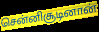
சென்னிசூடினான்